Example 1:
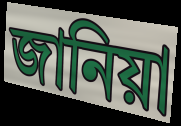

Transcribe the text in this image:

জানিয়া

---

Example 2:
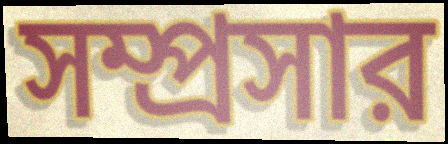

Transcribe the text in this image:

সম্প্রসার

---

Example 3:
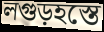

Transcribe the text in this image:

লগুড়হস্তে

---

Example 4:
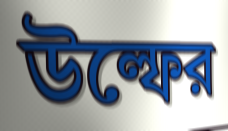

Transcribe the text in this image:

উল্ফের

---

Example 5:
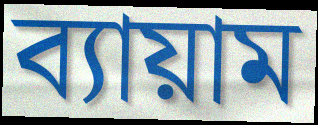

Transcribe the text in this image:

ব্যায়াম